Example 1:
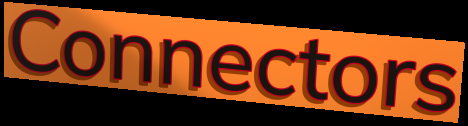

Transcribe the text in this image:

Connectors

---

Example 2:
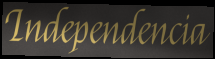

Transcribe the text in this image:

Independencia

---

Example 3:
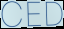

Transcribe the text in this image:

CED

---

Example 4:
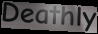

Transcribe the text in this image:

Deathly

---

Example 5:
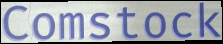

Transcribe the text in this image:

Comstock